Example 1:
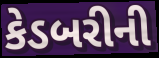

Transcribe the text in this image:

કેડબરીની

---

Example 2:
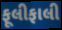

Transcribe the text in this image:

ફૂલીફાલી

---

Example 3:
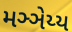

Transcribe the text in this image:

મઞ્ઞેય્ય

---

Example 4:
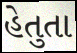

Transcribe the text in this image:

હેતુતા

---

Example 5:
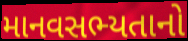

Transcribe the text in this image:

માનવસભ્યતાનો